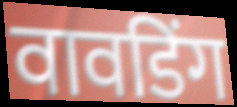
वावडिंग